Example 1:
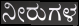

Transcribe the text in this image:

ನೀರುಗಳ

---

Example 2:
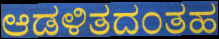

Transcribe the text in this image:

ಆಡಳಿತದಂತಹ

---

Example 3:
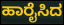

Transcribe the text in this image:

ಹಾರೈಸಿದ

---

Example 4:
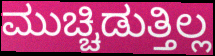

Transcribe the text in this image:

ಮುಚ್ಚಿಡುತ್ತಿಲ್ಲ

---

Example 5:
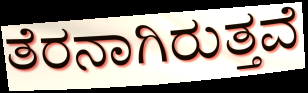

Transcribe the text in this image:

ತೆರನಾಗಿರುತ್ತವೆ